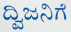
ದ್ವಿಜನಿಗೆ